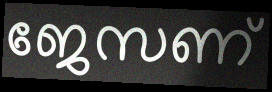
ജേസണ്